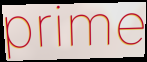
prime